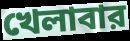
খেলাবার